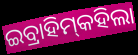
ଇବ୍ରାହିମ୍‌କହିଲା